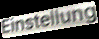
Einstellung